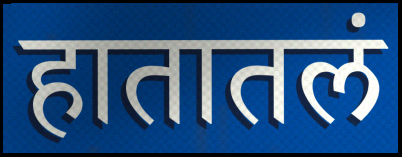
हातातलं